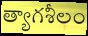
త్యాగశీలం